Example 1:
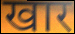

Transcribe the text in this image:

खार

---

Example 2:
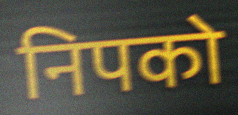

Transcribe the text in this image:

निपको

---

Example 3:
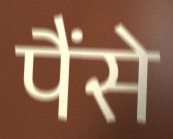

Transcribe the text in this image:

पैंसे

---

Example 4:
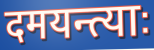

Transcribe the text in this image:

दमयन्त्याः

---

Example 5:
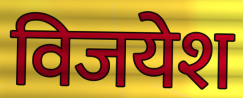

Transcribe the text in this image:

विजयेश